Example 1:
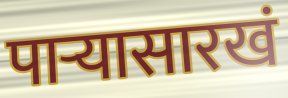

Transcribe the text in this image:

पाऱ्यासारखं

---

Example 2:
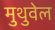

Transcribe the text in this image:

मुथुवेल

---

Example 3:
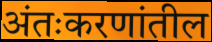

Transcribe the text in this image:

अंतःकरणांतील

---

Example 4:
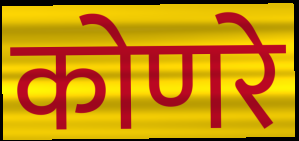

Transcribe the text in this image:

कोणरे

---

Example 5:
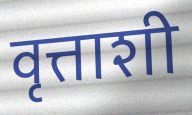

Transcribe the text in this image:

वृत्ताशी